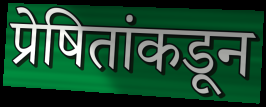
प्रेषितांकडून